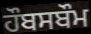
ਹੌਬਸਬੌਮ